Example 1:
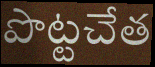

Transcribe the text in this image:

పొట్టచేత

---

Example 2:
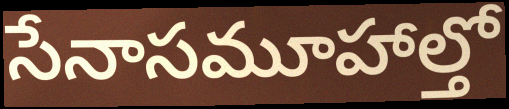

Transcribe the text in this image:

సేనాసమూహాల్తో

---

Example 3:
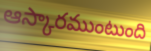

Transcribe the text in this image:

ఆస్కారముంటుంది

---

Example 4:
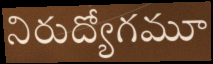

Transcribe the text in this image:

నిరుద్యోగమూ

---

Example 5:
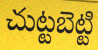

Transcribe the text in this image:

చుట్టబెట్టి